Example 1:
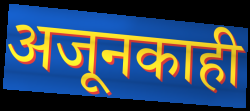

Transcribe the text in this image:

अजूनकाही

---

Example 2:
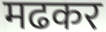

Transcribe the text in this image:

मढकर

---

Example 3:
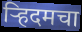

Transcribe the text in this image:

ऱ्हिदमचा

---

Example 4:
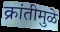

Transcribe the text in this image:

क्रांतीमुळे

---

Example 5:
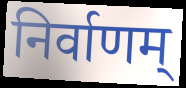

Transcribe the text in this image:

निर्वाणम्